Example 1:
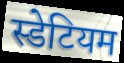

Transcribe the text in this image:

स्डेटियम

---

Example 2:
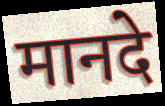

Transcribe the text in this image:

मानदे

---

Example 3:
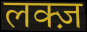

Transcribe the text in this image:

लक्ज़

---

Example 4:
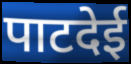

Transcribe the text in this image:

पाटदेई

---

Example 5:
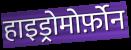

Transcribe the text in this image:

हाइड्रोमोर्फ़ोन